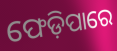
ଫେଡ଼ିପାରେ